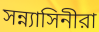
সন্ন্যাসিনীরা